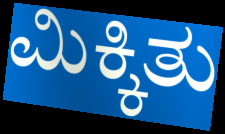
ಮಿಕ್ಕಿತು